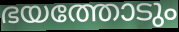
ഭയത്തോടും